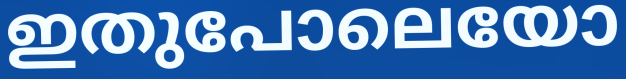
ഇതുപോലെയോ